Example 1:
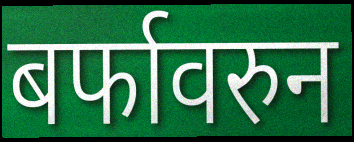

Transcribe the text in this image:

बर्फावरुन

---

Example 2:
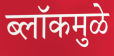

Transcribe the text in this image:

ब्लॉकमुळे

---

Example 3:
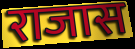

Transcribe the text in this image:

राजास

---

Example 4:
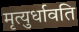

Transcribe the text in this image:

मृत्युर्धावति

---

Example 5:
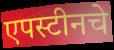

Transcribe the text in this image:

एपस्टीनचे